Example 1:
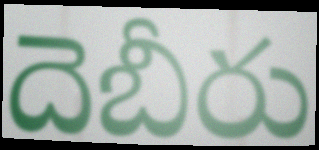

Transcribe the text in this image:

దెబీరు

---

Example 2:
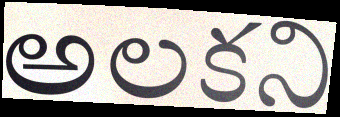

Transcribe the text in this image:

అలకని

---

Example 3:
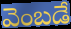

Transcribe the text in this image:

వెంబడే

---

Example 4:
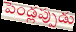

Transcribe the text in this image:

పెండ్లప్పుడు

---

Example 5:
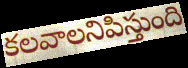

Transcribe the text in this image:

కలవాలనిపిస్తుంది